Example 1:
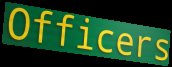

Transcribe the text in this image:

Officers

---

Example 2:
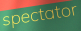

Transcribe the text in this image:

spectator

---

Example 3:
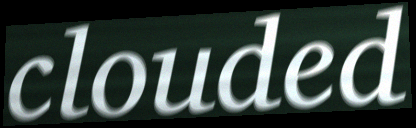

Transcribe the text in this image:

clouded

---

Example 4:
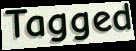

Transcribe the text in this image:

Tagged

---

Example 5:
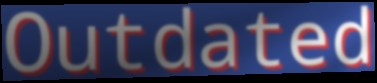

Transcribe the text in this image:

Outdated